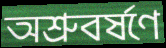
অশ্রুবর্ষণে